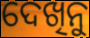
ଦେଖିନୁ